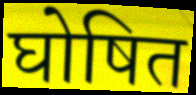
घोषित